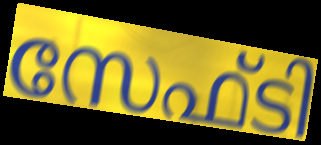
സേഫ്ടി